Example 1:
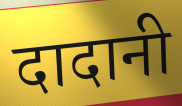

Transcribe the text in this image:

दादानी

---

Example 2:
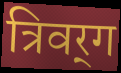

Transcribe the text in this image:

त्रिवर्ग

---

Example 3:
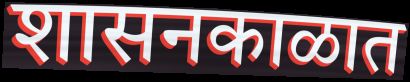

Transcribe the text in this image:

शासनकाळात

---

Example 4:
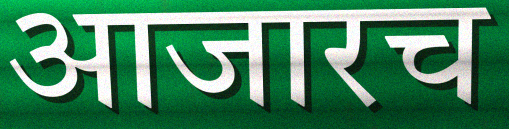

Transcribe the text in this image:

आजारच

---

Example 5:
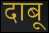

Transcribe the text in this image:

दाबू